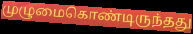
முழுமைகொண்டிருந்தது